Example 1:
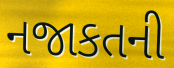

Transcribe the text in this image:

નજાકતની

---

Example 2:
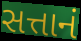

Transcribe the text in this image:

સત્તાનં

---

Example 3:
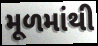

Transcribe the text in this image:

મૂળમાંથી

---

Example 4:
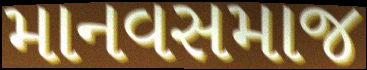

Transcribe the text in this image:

માનવસમાજ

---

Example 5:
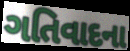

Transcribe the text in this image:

ગતિવાદના